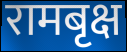
रामबृक्ष